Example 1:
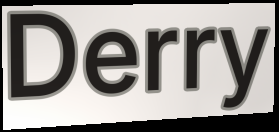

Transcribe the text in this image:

Derry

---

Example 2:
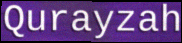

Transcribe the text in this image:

Qurayzah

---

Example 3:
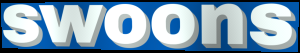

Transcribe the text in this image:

swoons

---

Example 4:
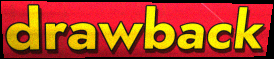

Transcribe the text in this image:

drawback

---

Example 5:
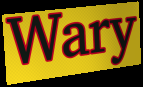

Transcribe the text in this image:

Wary